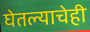
घेतल्याचेही